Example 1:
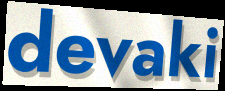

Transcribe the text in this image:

devaki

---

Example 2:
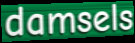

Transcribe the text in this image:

damsels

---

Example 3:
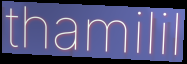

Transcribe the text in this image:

thamilil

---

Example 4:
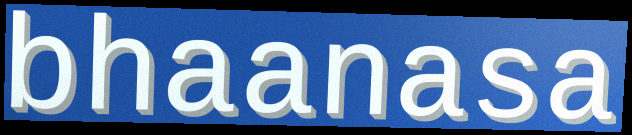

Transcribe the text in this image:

bhaanasa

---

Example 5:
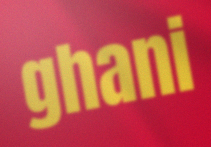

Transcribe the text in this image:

ghani